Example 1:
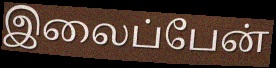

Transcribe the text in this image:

இலைப்பேன்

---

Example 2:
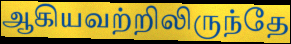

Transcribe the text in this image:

ஆகியவற்றிலிருந்தே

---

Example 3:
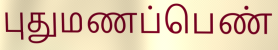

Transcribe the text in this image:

புதுமணப்பெண்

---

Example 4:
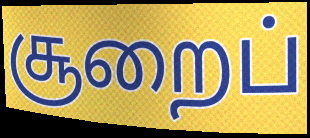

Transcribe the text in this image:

சூறைப்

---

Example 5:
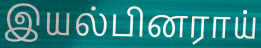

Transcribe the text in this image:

இயல்பினராய்